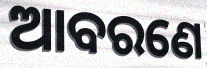
ଆବରଣେ